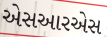
એસઆરએસ